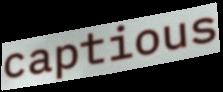
captious